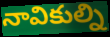
నావికుల్ని